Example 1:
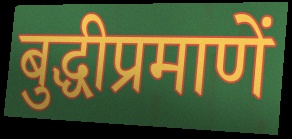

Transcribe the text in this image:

बुद्धीप्रमाणें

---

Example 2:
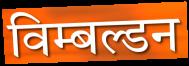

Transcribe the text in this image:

विम्बल्डन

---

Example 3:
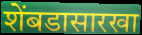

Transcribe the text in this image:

शेंबडासारखा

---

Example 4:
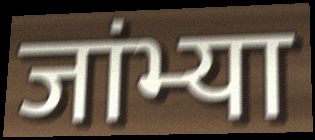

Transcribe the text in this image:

जांभ्या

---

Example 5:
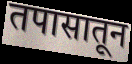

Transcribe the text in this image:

तपासातून